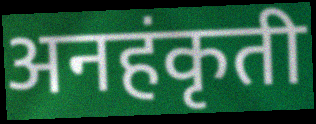
अनहंकृती